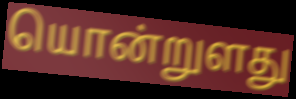
யொன்றுளது